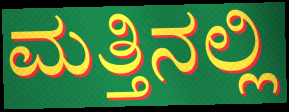
ಮತ್ತಿನಲ್ಲಿ